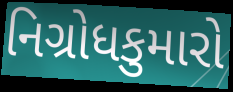
નિગ્રોધકુમારો